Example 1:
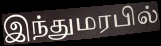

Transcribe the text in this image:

இந்துமரபில்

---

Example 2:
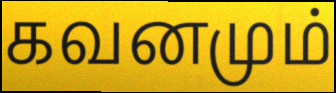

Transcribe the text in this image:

கவனமும்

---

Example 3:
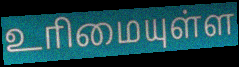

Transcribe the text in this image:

உரிமையுள்ள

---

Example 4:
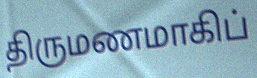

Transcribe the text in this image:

திருமணமாகிப்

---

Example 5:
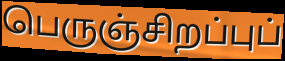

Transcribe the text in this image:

பெருஞ்சிறப்புப்